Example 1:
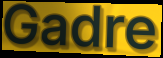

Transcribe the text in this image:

Gadre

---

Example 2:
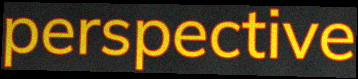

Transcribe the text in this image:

perspective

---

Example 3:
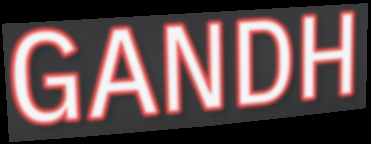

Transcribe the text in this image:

GANDH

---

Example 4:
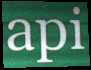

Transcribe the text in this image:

api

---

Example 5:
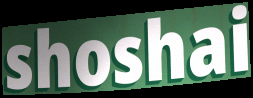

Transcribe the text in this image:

shoshai